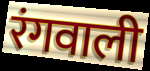
रंगवाली